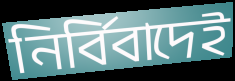
নির্বিবাদেই